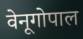
वेनूगोपाल